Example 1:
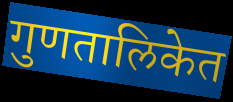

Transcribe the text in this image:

गुणतालिकेत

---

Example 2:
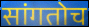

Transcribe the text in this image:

सांगतोच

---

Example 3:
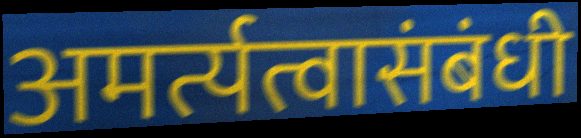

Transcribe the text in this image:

अमर्त्यत्वासंबंधी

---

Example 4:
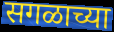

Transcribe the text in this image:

सगळाच्या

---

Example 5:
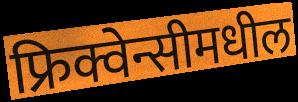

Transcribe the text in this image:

फ्रिक्वेन्सीमधील